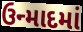
ઉન્માદમાં